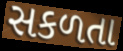
સકળતા